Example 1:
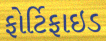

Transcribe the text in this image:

ફોર્ટિફાઇડ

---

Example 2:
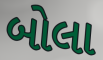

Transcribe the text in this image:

બોલા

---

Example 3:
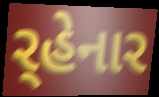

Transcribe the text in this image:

ર્‌હેનાર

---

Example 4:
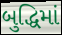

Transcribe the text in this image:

બુદ્ધિમાં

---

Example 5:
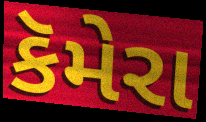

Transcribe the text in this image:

કૅમેરા